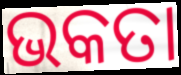
ଭକତା